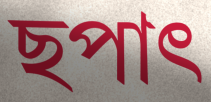
ছপাৎ